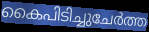
കൈപിടിച്ചുചേർത്ത